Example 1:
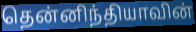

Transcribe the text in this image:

தென்னிந்தியாவின்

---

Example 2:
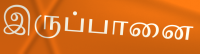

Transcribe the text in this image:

இருப்பானை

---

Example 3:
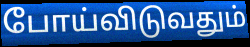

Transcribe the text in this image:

போய்விடுவதும்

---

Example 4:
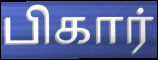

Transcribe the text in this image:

பிகார்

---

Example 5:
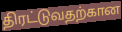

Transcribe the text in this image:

திரட்டுவதற்கான